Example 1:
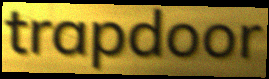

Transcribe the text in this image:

trapdoor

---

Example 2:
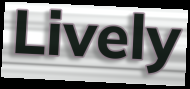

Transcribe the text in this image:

Lively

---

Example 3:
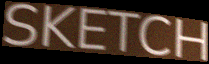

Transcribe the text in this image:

SKETCH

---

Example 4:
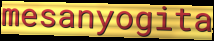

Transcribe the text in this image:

mesanyogita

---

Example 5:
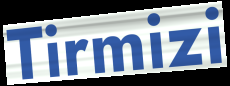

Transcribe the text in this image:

Tirmizi